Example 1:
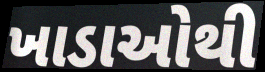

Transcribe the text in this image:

ખાડાઓથી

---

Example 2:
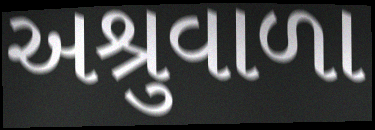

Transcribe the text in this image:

અશ્રુવાળા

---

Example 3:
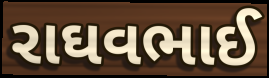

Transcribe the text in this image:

રાઘવભાઈ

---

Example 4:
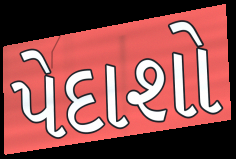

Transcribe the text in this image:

પેદાશો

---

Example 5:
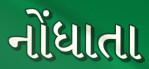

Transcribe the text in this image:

નોંધાતા